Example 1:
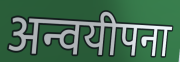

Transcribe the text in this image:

अन्वयीपना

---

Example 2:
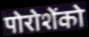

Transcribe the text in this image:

पोरोशेंको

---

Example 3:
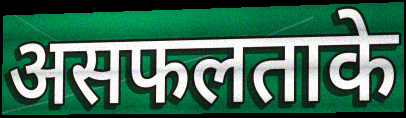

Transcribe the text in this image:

असफलताके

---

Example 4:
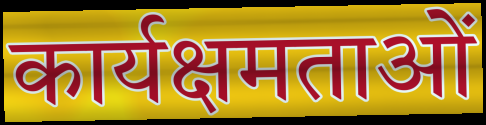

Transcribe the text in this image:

कार्यक्षमताओं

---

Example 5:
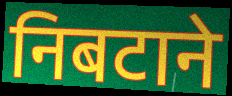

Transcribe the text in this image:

निबटाने